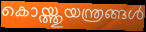
കൊയ്ത്തുയന്ത്രങ്ങൾ